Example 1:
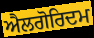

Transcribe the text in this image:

ਐਲਗੋਰਿਦਮ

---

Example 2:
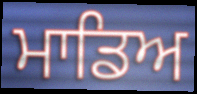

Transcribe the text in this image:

ਮਾਡਿਅ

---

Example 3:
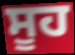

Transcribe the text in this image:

ਸੂਹ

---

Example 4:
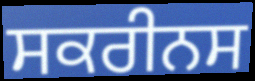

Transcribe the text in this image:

ਸਕਰੀਨਸ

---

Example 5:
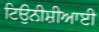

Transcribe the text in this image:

ਟਿਉਨੀਸ਼ੀਆਈ